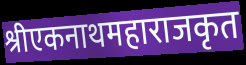
श्रीएकनाथमहाराजकृत